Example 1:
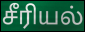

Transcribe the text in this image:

சீரியல்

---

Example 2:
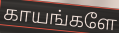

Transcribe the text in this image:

காயங்களே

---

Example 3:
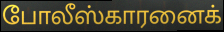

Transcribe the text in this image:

போலீஸ்காரனைக்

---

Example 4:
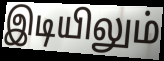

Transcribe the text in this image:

இடியிலும்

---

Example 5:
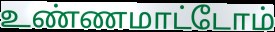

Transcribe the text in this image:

உண்ணமாட்டோம்